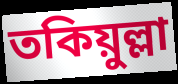
তকিয়ুল্লা